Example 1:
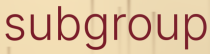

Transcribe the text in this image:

subgroup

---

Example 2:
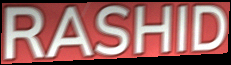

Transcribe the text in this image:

RASHID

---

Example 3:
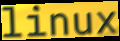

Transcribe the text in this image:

linux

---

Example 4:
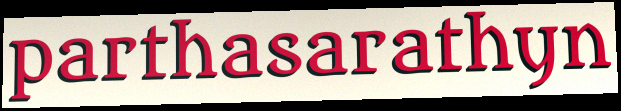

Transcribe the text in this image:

parthasarathyn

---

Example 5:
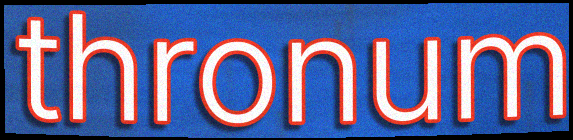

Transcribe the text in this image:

thronum